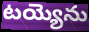
టయ్యెను